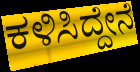
ಕಳಿಸಿದ್ದೇನೆ